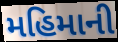
મહિમાની